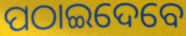
ପଠାଇଦେବେ